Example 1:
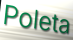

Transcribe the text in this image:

Poleta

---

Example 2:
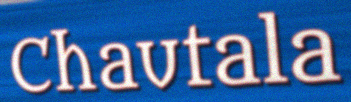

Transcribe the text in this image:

Chautala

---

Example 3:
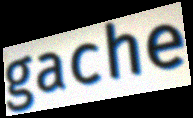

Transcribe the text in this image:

gache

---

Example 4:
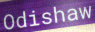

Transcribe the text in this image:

Odishaw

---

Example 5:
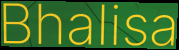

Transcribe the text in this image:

Bhalisa